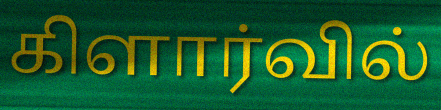
கிளார்வில்